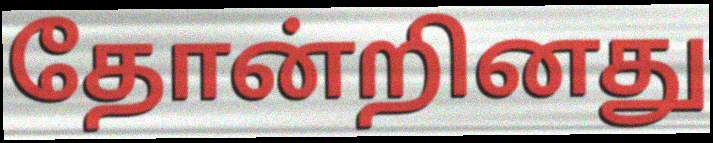
தோன்றினது